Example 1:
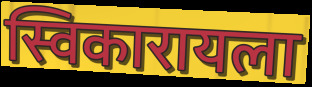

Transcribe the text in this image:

स्विकारायला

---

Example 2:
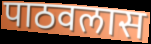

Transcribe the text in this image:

पाठवलास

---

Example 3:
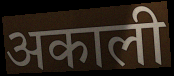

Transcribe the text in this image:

अकाली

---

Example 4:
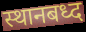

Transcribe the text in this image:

स्थानबध्द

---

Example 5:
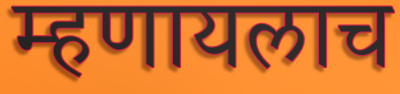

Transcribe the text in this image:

म्हणायलाच